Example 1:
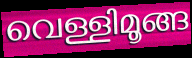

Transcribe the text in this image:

വെള്ളിമൂങ്ങ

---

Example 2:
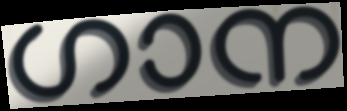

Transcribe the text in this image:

ഗാന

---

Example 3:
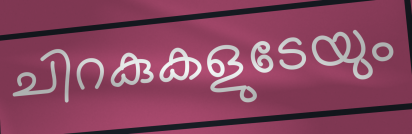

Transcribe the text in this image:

ചിറകുകളുടേയും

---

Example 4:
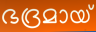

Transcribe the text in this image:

ഭദ്രമായ്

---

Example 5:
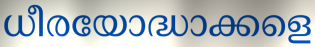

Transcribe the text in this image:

ധീരയോദ്ധാക്കളെ